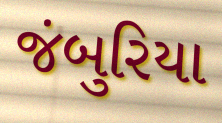
જંબુરિયા